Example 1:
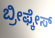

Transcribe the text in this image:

ಬ್ರೀಫ್ಕೇಸ್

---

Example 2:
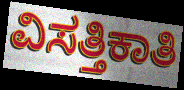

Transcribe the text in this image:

ವಿಸತ್ತಿಕಾತಿ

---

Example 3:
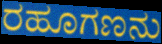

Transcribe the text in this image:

ರಹೂಗಣನು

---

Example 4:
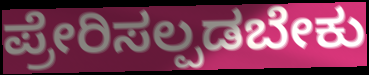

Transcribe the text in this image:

ಪ್ರೇರಿಸಲ್ಪಡಬೇಕು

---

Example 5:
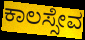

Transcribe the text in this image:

ಕಾಲಸ್ಸೇವ